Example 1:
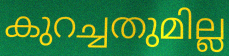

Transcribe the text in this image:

കുറച്ചതുമില്ല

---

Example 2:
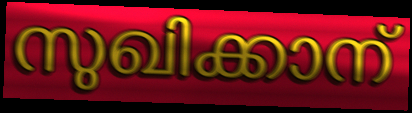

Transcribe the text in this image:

സുഖിക്കാന്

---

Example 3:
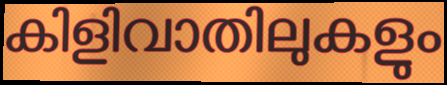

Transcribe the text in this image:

കിളിവാതിലുകളും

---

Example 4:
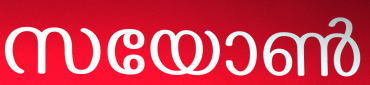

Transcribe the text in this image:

സയോൺ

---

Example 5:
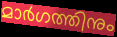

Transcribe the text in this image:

മാർഗത്തിനും